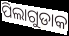
ପିଲାଗୁଡାକ